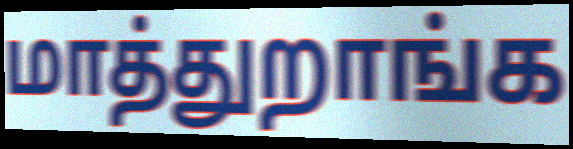
மாத்துறாங்க